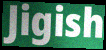
Jigish